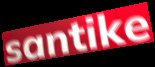
santike